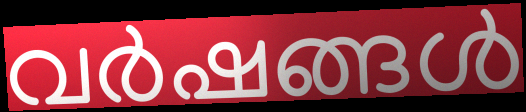
വർഷങ്ങൾ